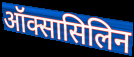
ऑक्सासिलिन